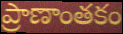
ప్రాణాంతకం